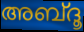
അബ്ദൂ